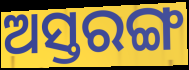
ଅସ୍ତରଙ୍ଗ